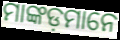
ମାଙ୍କଡ଼ମାନେ